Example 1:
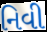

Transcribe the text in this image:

નિવી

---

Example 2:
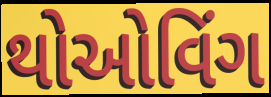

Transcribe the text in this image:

થોઓવિંગ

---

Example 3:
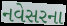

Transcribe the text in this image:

નવેસરના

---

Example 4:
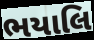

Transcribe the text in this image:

ભયાલિ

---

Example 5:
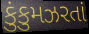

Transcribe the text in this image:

કુંકુમઝરતાં